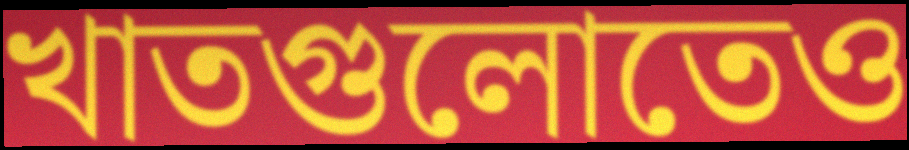
খাতগুলোতেও